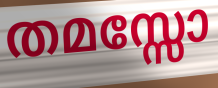
തമസ്സോ